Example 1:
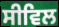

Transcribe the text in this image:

ਸੀਵਿਲ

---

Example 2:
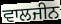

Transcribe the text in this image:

ਵਾਲਜੀਨ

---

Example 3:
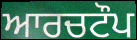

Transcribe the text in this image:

ਆਰਚਟੌਪ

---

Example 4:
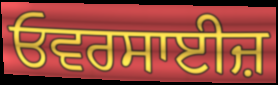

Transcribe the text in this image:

ਓਵਰਸਾਈਜ਼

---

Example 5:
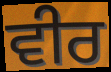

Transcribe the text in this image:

ਵੀਰ